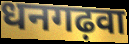
धनगढ़वा